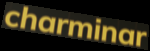
charminar